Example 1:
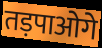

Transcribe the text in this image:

तड़पाओगे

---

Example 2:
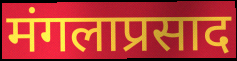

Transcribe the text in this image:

मंगलाप्रसाद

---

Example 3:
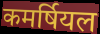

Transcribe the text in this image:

कमर्षियल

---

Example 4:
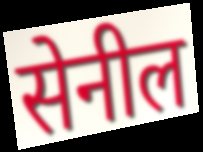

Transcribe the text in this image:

सेनील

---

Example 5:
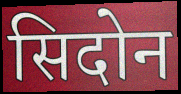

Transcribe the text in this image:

सिदोन